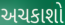
અચકાશો